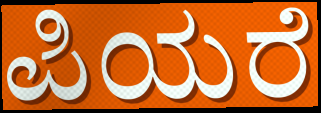
ಪಿಯರೆ